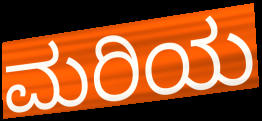
ಮರಿಯ